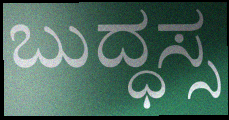
ಬುದ್ಧಸ್ಸ